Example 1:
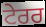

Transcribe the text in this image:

ਟੇਰਰ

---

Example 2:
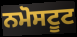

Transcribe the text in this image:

ਨਮੋਸਟੂਟ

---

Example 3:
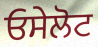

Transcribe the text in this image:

ਓਸੇਲੋਟ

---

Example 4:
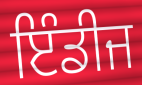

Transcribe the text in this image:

ਇੰਡੀਜ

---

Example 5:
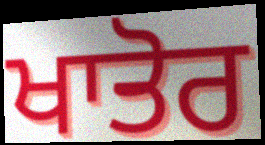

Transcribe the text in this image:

ਖਾਤੋਰ